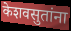
केशवसुतांना